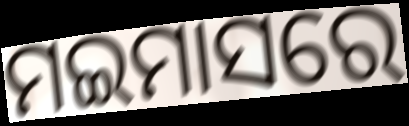
ମଇମାସରେ